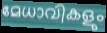
മേധാവികളും